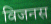
विजनस